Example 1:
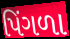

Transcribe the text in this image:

પિંગળા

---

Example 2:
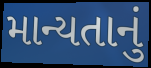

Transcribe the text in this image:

માન્યતાનું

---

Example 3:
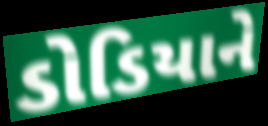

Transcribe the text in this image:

ડોડિયાને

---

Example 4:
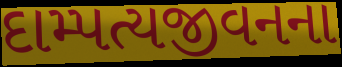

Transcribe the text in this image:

દામ્પત્યજીવનના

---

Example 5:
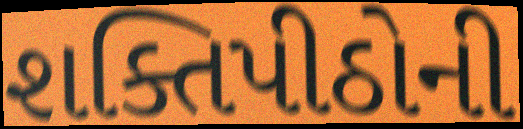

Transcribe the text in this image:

શક્તિપીઠોની